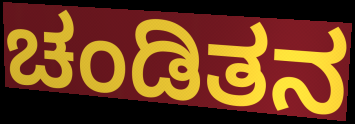
ಚಂಡಿತನ